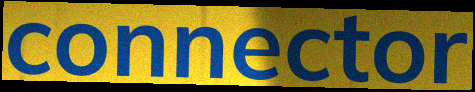
connector